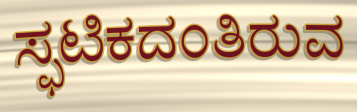
ಸ್ಫಟಿಕದಂತಿರುವ